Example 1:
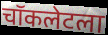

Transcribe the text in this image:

चॉकलेटला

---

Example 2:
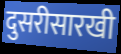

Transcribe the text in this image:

दुसरीसारखी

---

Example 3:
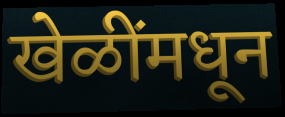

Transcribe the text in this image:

खेळींमधून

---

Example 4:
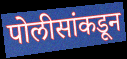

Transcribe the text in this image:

पोलीसांकडून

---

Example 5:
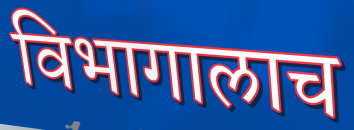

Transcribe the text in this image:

विभागालाच